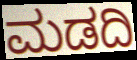
ಮಡದಿ